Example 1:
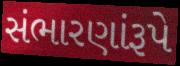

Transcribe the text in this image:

સંભારણાંરૂપે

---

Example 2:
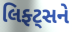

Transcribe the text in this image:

લિફ્ટ્સને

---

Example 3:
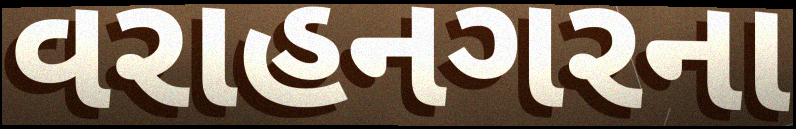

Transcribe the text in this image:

વરાહનગરના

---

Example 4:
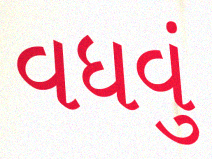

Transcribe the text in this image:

વધવું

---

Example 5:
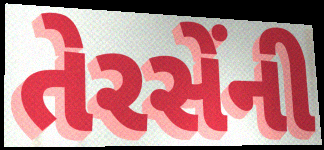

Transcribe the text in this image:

તેરસેંની